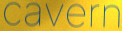
cavern